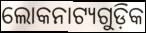
ଲୋକନାଟ୍ୟଗୁଡ଼ିକ